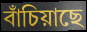
বাঁচিয়াছে